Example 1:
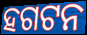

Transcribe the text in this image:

ହଗଟନ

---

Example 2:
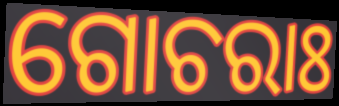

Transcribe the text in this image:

ଗୋଚରାଃ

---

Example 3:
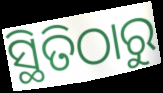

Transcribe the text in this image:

ସ୍ଥିତିଠାରୁ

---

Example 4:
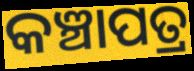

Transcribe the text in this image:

କଞ୍ଚାପତ୍ର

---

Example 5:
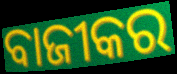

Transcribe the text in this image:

ବାଜୀକର